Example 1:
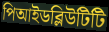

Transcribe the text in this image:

পিআইডব্লিউটিটি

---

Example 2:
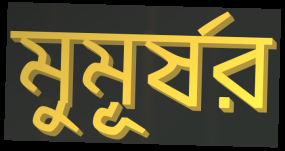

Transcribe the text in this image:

মুমূর্ষর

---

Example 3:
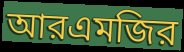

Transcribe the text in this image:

আরএমজির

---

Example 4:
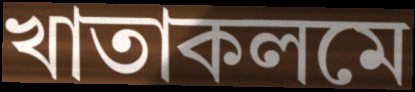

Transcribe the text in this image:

খাতাকলমে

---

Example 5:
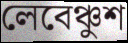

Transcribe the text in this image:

লেবেঞ্চুশ